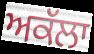
ਅਕੱਲਾ